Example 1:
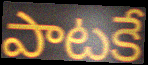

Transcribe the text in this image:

పాటకే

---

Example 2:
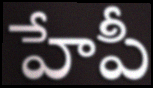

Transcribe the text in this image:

హేపీ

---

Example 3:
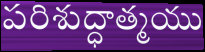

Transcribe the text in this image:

పరిశుద్ధాత్మయు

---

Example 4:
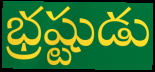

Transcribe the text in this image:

భ్రష్టుడు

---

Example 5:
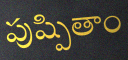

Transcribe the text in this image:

పుష్పితాం